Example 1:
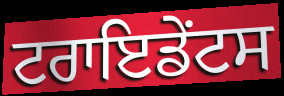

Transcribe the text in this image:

ਟਰਾਇਡੇਂਟਸ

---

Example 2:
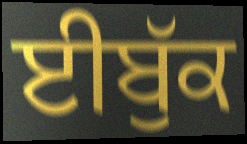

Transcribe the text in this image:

ਈਬੁੱਕ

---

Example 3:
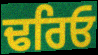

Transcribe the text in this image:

ਢਰਿਓ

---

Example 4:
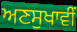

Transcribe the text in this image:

ਅਣਸੁਖਾਵੀਂ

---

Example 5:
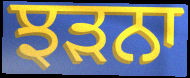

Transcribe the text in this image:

ਝੜਨਾ